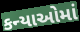
કન્યાઓમાં